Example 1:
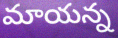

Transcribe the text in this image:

మాయన్న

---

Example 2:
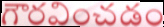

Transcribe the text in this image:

గౌరవించడం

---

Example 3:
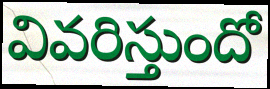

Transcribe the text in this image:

వివరిస్తుందో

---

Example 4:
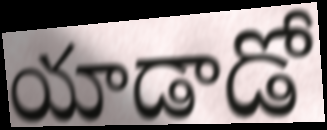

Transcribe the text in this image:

యాడాడో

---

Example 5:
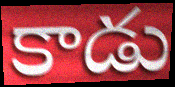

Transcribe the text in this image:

కాడు